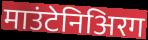
माउंटेनिअिरग